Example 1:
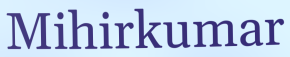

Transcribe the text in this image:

Mihirkumar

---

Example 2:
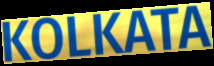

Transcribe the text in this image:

KOLKATA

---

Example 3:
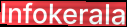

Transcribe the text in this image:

Infokerala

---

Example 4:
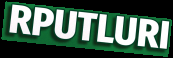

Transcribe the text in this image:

RPUTLURI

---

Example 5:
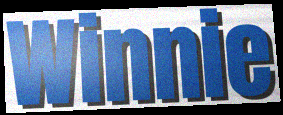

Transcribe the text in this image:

Winnie